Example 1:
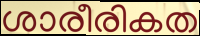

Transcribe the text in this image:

ശാരീരികത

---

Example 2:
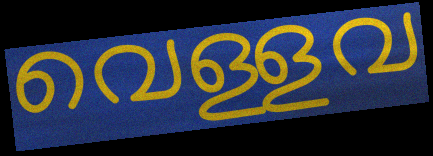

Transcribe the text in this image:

വെള്ളവ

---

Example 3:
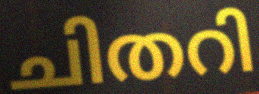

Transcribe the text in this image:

ചിതറി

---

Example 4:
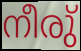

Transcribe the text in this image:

നീരു്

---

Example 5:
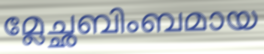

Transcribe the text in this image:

മ്ലേച്ഛബിംബമായ